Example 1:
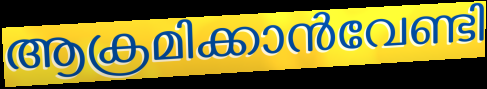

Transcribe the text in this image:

ആക്രമിക്കാൻവേണ്ടി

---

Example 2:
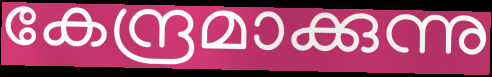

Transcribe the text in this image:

കേന്ദ്രമാക്കുന്നു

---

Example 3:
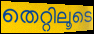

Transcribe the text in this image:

തെറ്റിലൂടെ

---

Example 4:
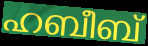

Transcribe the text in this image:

ഹബീബ്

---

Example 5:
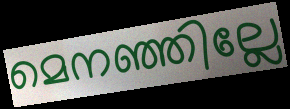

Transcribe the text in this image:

മെനഞ്ഞില്ലേ